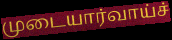
முடையார்வாய்ச்